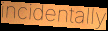
incidentally